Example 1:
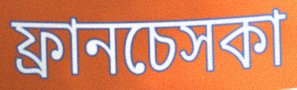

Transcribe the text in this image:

ফ্রানচেসকা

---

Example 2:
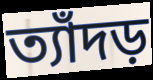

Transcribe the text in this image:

ত্যাঁদড়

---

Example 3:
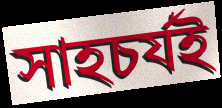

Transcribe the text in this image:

সাহচর্যই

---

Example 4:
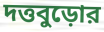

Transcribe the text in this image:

দত্তবুড়োর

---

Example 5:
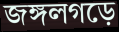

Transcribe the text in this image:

জঙ্গলগড়ে